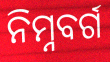
ନିମ୍ନବର୍ଗ